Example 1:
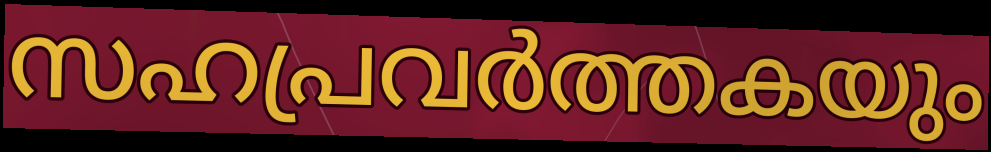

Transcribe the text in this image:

സഹപ്രവർത്തകയും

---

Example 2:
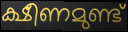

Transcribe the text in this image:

ക്ഷീണമുണ്ട്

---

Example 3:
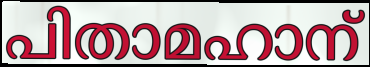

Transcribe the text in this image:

പിതാമഹാന്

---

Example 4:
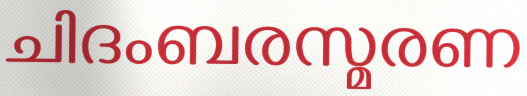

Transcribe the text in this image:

ചിദംബരസ്മരണ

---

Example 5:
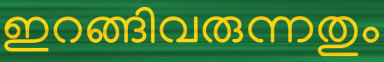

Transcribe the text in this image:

ഇറങ്ങിവരുന്നതും